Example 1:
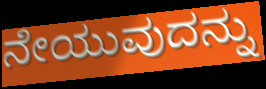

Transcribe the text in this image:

ನೇಯುವುದನ್ನು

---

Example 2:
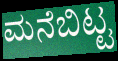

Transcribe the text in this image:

ಮನೆಬಿಟ್ಟ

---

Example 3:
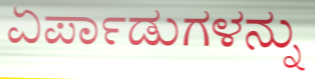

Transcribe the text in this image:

ಏರ್ಪಾಡುಗಳನ್ನು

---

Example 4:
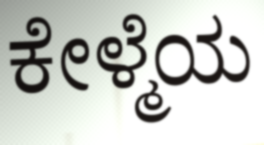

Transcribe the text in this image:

ಕೇಳ್ಮೆಯ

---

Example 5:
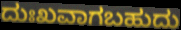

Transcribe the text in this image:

ದುಃಖವಾಗಬಹುದು